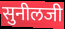
सुनीलजी